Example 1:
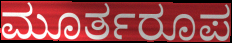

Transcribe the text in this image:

ಮೂರ್ತರೂಪ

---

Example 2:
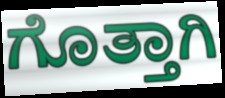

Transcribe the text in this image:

ಗೊತ್ತಾಗಿ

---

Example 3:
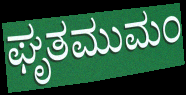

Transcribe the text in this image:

ಘೃತಮುಮಂ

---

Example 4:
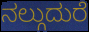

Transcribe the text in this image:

ನಲ್ಗುದುರೆ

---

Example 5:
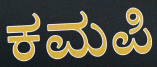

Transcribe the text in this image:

ಕಮಪಿ